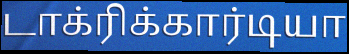
டாக்ரிக்கார்டியா